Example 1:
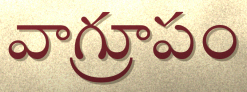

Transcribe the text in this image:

వాగ్రూపం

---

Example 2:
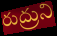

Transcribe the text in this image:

రుద్రుని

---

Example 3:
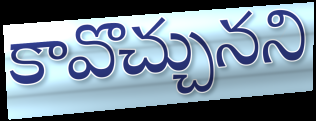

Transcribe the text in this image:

కావొచ్చునని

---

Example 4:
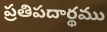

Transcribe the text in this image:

ప్రతిపదార్థము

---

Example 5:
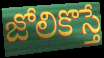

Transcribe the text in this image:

జోలికొస్తే